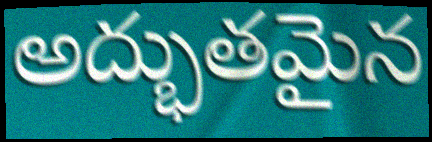
అద్భుతమైన